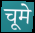
चूमे